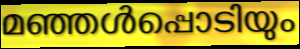
മഞ്ഞൾപ്പൊടിയും